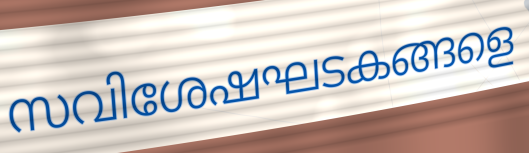
സവിശേഷഘടകങ്ങളെ